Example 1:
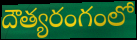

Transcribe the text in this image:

దౌత్యరంగంలో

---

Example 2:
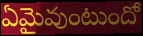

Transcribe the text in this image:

ఏమైవుంటుందో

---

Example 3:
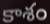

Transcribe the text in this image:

కాశం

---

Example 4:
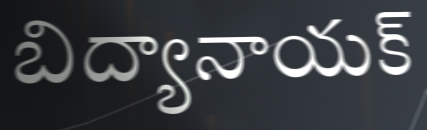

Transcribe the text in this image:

బిద్యానాయక్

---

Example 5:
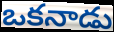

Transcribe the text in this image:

ఒకనాడు